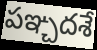
పఞ్చదశే